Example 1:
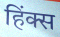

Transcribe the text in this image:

हिंक्स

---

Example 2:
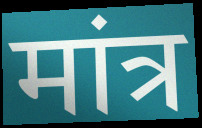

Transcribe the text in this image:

मांत्र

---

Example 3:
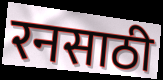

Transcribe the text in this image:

रनसाठी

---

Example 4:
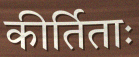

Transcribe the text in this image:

कीर्तिताः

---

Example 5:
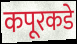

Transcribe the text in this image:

कपूरकडे